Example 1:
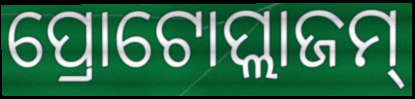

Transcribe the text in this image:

ପ୍ରୋଟୋପ୍ଲାଜମ୍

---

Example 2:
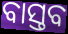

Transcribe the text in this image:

ବାସ୍ତବ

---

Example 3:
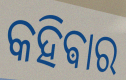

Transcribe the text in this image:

କହିଵାର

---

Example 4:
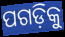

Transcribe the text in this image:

ପଗଡ଼ିକୁ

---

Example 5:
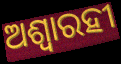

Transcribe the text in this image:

ଅଶ୍ୱାରହୀ